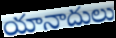
యానాదులు